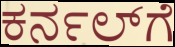
ಕರ್ನಲ್‌ಗೆ